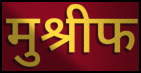
मुश्रीफ